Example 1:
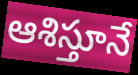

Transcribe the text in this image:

ఆశిస్తూనే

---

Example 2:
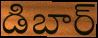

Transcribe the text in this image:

డిబార్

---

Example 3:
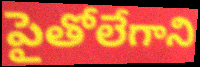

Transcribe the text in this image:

పైతోలేగాని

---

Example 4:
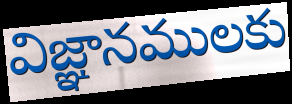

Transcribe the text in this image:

విజ్ఞానములకు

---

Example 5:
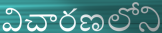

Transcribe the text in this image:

విచారణలోని